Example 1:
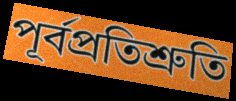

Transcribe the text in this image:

পূর্বপ্রতিশ্রুতি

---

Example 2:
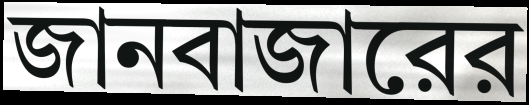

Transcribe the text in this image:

জানবাজারের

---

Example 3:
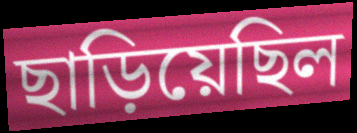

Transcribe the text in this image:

ছাড়িয়েছিল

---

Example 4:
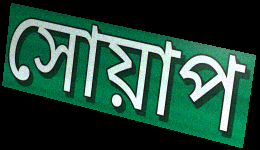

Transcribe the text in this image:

সোয়াপ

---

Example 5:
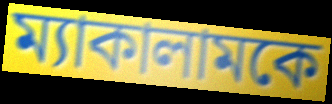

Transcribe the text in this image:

ম্যাকালামকে